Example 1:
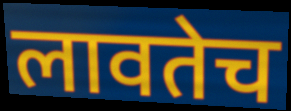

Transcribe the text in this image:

लावतेच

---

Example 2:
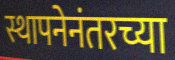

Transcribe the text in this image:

स्थापनेनंतरच्या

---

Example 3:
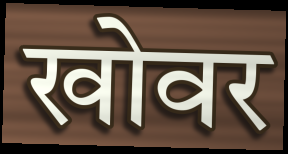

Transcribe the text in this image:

खोवर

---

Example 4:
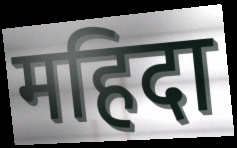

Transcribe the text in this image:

महिदा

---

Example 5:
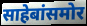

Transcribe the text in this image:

साहेबांसमोर